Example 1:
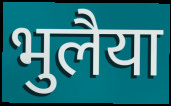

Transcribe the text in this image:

भुलैया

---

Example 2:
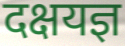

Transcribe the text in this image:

दक्षयज्ञ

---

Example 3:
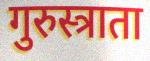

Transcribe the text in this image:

गुरुस्त्राता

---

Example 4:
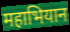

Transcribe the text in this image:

महाभियान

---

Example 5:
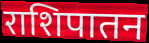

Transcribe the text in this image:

राशिपातन